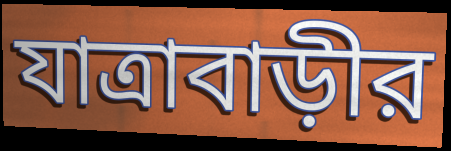
যাত্রাবাড়ীর